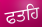
ਫਤਹਿ